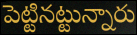
పెట్టినట్టున్నారు